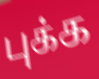
புக்க